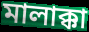
মালাক্কা